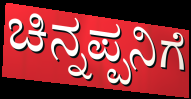
ಚಿನ್ನಪ್ಪನಿಗೆ